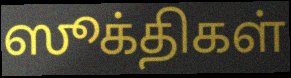
ஸூக்திகள்